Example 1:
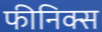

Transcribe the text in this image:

फीनिक्स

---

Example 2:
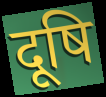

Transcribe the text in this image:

दूषि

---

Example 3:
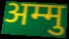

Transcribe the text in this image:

अम्मु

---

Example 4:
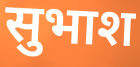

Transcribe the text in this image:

सुभाश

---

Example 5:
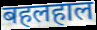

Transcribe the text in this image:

बहलहाल